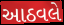
આઠવલે